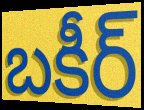
బకీర్